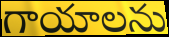
గాయాలను